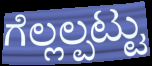
ಗೆಲ್ಲಲ್ಪಟ್ಟು